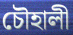
চৌহালী